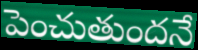
పెంచుతుందనే